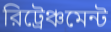
রিট্রেঞ্চমেন্ট